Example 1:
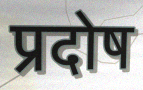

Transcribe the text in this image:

प्रदोष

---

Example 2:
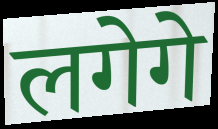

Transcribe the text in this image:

लगेगे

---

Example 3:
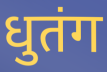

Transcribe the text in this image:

धुतंग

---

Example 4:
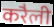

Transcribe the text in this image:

करैली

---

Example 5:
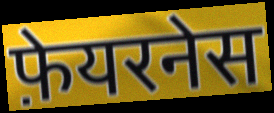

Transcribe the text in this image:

फ़ेयरनेस